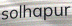
solhapur